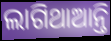
ଲାଗିଥାଆନ୍ତି